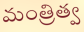
మంత్రిత్వ